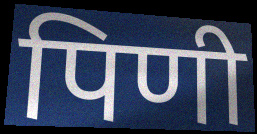
पिणी